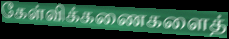
கேள்விக்கணைகளைத்